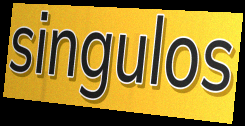
singulos